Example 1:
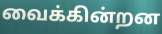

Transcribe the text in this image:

வைக்கின்றன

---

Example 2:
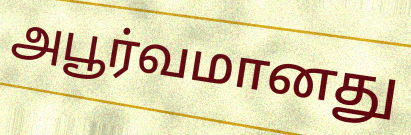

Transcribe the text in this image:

அபூர்வமானது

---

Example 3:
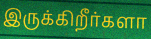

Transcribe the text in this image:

இருக்கிறீர்களா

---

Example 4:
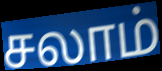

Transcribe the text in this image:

சலாம்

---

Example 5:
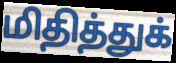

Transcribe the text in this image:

மிதித்துக்